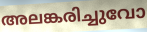
അലങ്കരിച്ചുവോ